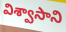
విశ్వాసాని